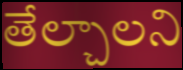
తేల్చాలని